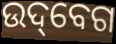
ଉଦ୍‌ବେଗ